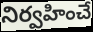
నిర్వహించే